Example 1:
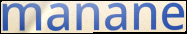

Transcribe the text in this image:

manane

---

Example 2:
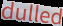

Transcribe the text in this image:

dulled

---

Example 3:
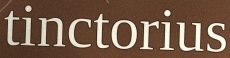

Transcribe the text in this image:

tinctorius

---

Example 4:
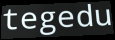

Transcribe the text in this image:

tegedu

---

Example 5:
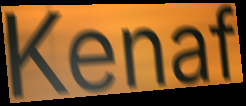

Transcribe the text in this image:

Kenaf